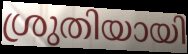
ശ്രുതിയായി